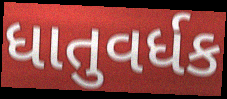
ધાતુવર્ધક